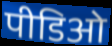
पीडिओ